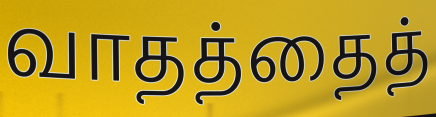
வாதத்தைத்